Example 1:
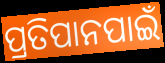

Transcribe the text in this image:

ପ୍ରତିପାନପାଇଁ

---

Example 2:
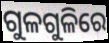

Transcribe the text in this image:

ଗୁଳଗୁଳିରେ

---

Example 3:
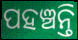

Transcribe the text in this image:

ପହଞ୍ଚନ୍ତି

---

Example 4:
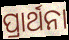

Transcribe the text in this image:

ପ୍ରାର୍ଥନା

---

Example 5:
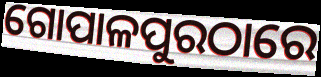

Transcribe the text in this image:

ଗୋପାଳପୁରଠାରେ